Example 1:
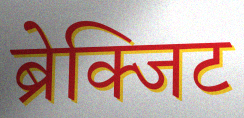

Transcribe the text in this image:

ब्रेक्जिट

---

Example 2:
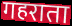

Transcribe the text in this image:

गहराता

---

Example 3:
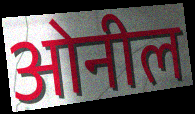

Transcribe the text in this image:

ओनील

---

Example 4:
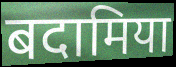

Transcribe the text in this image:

बदामिया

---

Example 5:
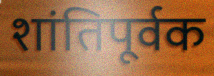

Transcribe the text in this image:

शांतिपूर्वक